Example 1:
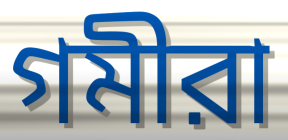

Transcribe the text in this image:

গমীরা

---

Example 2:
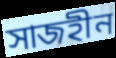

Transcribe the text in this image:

সাজহীন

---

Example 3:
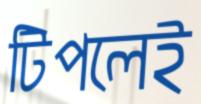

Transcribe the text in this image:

টিপলেই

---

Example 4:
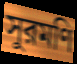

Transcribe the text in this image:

সুরমণি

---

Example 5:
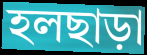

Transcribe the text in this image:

হলছাড়া